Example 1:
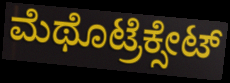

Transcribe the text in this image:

ಮೆಥೊಟ್ರೆಕ್ಸೇಟ್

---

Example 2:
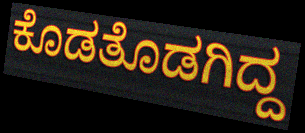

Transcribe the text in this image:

ಕೊಡತೊಡಗಿದ್ದ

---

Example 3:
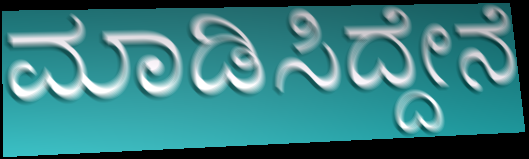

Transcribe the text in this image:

ಮಾಡಿಸಿದ್ದೇನೆ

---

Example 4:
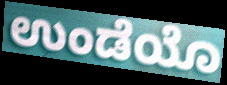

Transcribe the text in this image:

ಉಂಡೆಯೊ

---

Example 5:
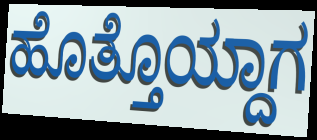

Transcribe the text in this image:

ಹೊತ್ತೊಯ್ದಾಗ